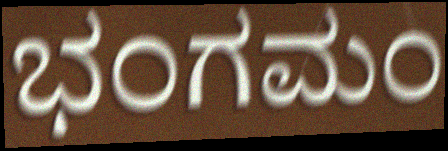
ಭಂಗಮಂ